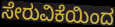
ಸೇರುವಿಕೆಯಿಂದ